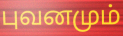
புவனமும்